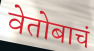
वेतोबाचं